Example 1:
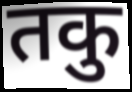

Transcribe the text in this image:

तकु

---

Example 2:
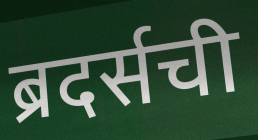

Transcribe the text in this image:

ब्रदर्सची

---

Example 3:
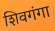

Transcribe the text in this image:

शिवगंगा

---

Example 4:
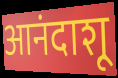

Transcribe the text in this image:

आनंदाश्रू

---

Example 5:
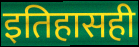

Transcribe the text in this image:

इतिहासही